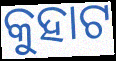
କୁହାଟ